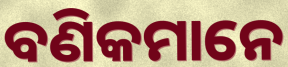
ବଣିକମାନେ